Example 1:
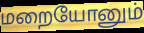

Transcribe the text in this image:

மறையோனும்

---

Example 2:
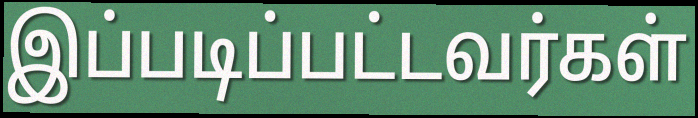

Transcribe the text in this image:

இப்படிப்பட்டவர்கள்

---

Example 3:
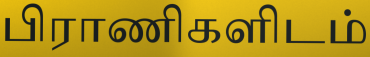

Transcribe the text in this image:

பிராணிகளிடம்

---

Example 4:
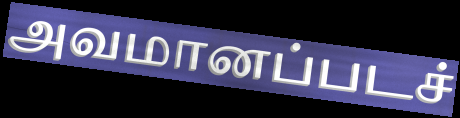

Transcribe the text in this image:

அவமானப்படச்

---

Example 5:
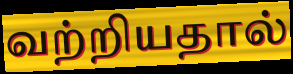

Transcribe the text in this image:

வற்றியதால்